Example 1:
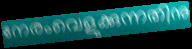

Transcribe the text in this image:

നേരംവെളുക്കുന്നതിനു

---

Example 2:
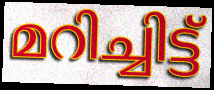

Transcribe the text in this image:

മറിച്ചിട്ട്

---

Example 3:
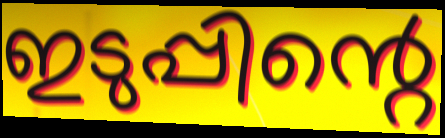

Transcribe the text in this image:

ഇടുപ്പിന്റെ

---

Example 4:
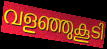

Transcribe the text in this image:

വളഞ്ഞുകൂടി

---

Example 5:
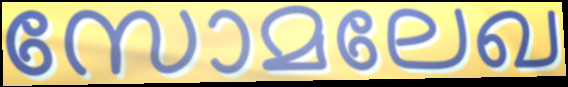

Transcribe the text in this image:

സോമലേഖ